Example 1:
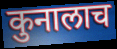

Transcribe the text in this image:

कुनालाच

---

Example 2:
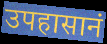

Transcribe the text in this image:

उपहासानं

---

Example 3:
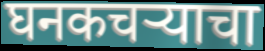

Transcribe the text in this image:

घनकचऱ्याचा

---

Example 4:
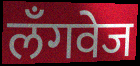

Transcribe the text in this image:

लॅंगवेज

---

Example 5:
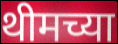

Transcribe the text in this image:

थीमच्या